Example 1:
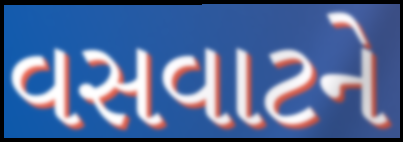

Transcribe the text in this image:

વસવાટને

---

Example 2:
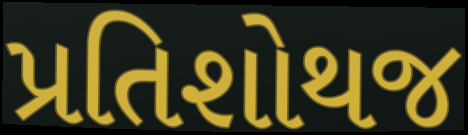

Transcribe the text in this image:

પ્રતિશોથજ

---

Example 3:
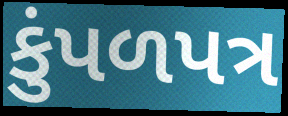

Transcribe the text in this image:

કુંપળપત્ર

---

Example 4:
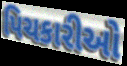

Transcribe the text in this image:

પિચકારીઓ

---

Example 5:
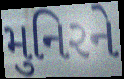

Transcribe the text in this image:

મુનિરને